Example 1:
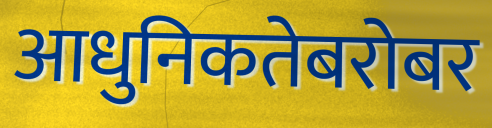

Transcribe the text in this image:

आधुनिकतेबरोबर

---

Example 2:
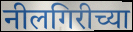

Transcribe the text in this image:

नीलगिरीच्या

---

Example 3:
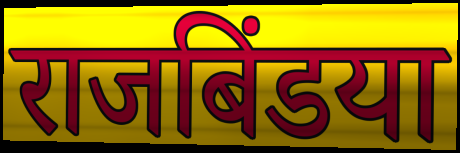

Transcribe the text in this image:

राजबिंडया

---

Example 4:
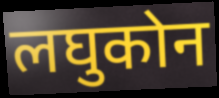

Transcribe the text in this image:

लघुकोन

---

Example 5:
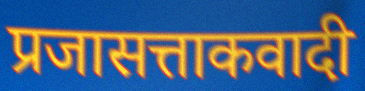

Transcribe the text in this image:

प्रजासत्ताकवादी